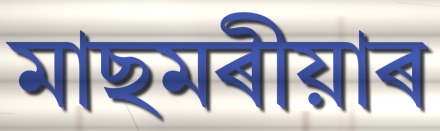
মাছমৰীয়াৰ